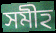
সমীহ